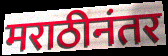
मराठीनंतर